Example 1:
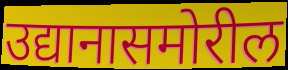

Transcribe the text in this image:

उद्यानासमोरील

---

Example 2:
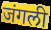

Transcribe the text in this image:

जंगली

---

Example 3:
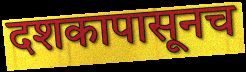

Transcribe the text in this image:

दशकापासूनच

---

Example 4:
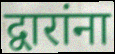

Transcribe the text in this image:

द्वारांना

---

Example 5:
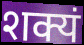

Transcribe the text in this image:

शक्यं